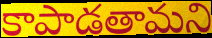
కాపాడతామని